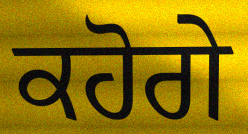
ਕਹੋਗੇ